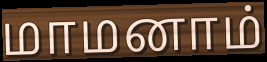
மாமனாம்